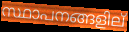
സ്ഥാപനങ്ങളില്